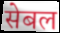
सेबल